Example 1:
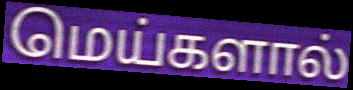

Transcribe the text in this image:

மெய்களால்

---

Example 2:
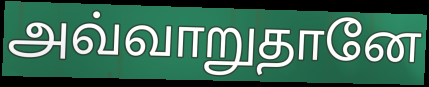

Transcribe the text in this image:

அவ்வாறுதானே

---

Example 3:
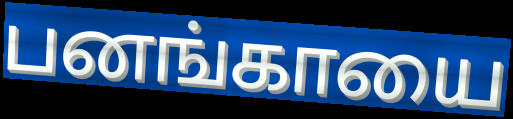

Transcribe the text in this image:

பனங்காயை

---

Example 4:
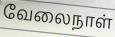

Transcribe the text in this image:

வேலைநாள்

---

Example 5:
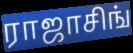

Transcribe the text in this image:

ராஜாசிங்